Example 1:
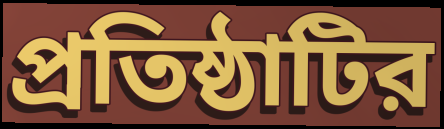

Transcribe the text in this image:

প্রতিষ্ঠাটির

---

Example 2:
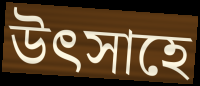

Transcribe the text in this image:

উৎসাহে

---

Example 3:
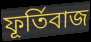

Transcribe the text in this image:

ফূর্তিবাজ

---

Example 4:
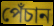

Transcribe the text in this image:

পেঁচান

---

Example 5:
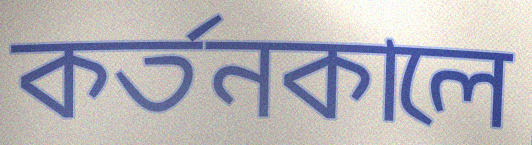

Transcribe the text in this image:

কর্তনকালে